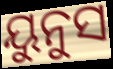
ୟୁନୁସ